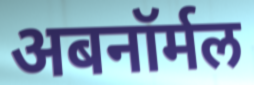
अबनॉर्मल